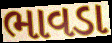
ભાવડા